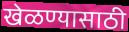
खेळण्यासाठी